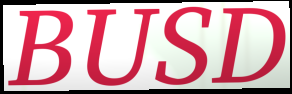
BUSD